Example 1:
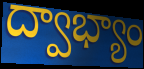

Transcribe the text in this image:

ద్వాభ్యాం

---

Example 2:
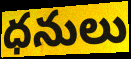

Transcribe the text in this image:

ధనులు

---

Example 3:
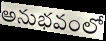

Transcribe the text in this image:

అనుభవంలో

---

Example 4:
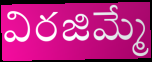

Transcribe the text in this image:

విరజిమ్మే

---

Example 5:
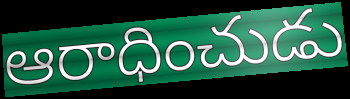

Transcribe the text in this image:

ఆరాధించుడు